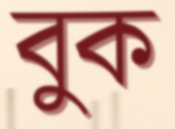
বুক